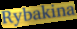
Rybakina